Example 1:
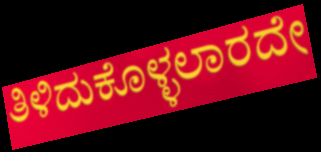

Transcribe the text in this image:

ತಿಳಿದುಕೊಳ್ಳಲಾರದೇ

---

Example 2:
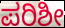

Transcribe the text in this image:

ಪರಿಶೀ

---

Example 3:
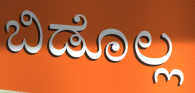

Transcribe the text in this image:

ಬಿಡೊಲ್ಲ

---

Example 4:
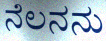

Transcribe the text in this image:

ನೆಲನನು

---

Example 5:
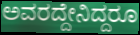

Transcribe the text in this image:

ಅವರದ್ದೇನಿದ್ದರೂ